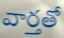
వార్తతో